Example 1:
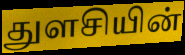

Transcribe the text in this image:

துளசியின்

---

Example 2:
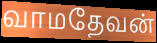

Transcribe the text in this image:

வாமதேவன்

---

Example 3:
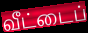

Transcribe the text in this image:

வீட்டைப்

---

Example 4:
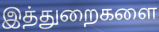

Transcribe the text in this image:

இத்துறைகளை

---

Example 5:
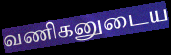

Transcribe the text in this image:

வணிகனுடைய